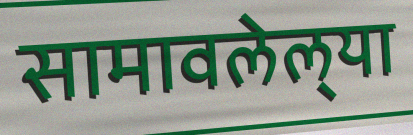
सामावलेल्या